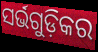
ସର୍ଭଗୁଡ଼ିକର